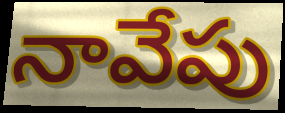
నావేపు